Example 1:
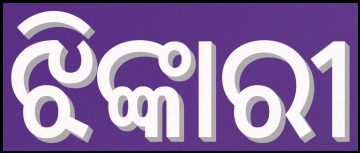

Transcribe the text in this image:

ଝିଙ୍କାରୀ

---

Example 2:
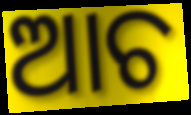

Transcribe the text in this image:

ଆଚ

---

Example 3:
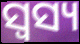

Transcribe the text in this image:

ସ୍ଵସ୍ୟ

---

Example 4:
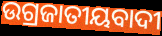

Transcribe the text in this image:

ଉଗ୍ରଜାତୀୟବାଦୀ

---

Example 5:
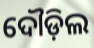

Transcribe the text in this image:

ଦୌଡ଼ିଲ